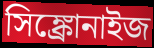
সিঙ্ক্রোনাইজ